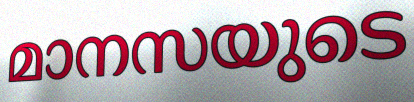
മാനസയുടെ